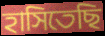
হাসিতেছি